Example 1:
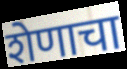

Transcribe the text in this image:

शेणाचा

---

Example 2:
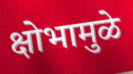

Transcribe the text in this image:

क्षोभामुळे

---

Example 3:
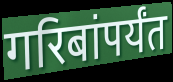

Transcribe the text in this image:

गरिबांपर्यंत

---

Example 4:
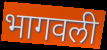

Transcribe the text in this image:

भागवली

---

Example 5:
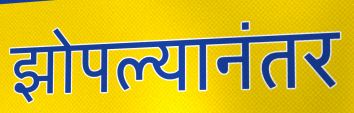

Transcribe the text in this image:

झोपल्यानंतर